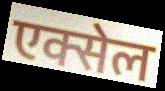
एक्सेल